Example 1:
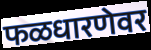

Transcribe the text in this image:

फळधारणेवर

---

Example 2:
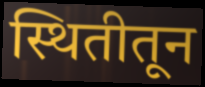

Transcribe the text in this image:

स्थितीतून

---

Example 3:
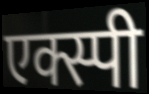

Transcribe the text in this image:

एक्स्पी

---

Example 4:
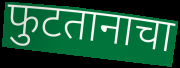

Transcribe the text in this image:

फुटतानाचा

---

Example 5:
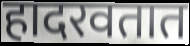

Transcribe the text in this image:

हादरवतात